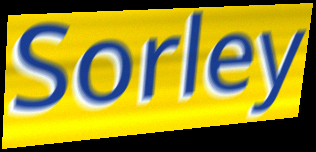
Sorley